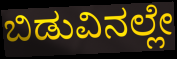
ಬಿಡುವಿನಲ್ಲೇ